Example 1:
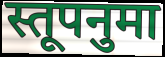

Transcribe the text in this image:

स्तूपनुमा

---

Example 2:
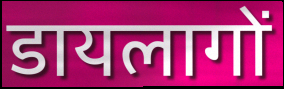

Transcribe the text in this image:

डायलागों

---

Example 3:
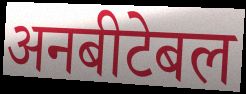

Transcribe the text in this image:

अनबीटेबल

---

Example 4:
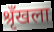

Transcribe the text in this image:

श्रृँखला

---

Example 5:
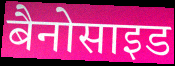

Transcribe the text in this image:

बैनोसाइड